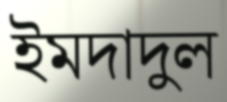
ইমদাদুল